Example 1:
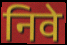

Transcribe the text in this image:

निवे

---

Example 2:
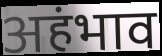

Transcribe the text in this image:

अहंभाव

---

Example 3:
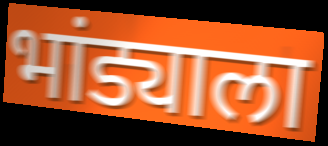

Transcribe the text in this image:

भांड्याला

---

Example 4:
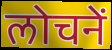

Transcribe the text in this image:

लोचनें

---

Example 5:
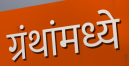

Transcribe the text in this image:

ग्रंथांमध्ये